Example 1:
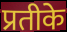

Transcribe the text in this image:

प्रतीके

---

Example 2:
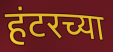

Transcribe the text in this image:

हंटरच्या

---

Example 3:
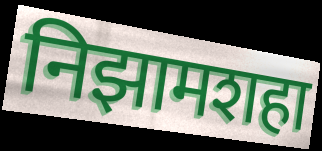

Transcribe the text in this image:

निझामशहा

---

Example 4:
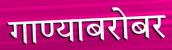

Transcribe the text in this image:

गाण्याबरोबर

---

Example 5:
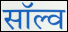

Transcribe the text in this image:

सॉल्व